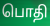
பொதி